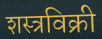
शस्त्रविक्री